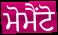
ਮੋਮੈਂਟੋ